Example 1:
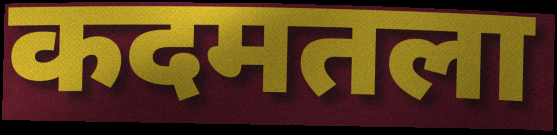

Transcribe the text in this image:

कदमतला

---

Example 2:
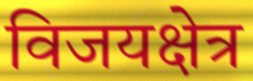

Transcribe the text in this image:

विजयक्षेत्र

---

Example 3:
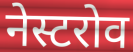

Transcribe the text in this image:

नेस्टरोव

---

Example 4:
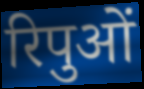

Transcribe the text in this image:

रिपुओं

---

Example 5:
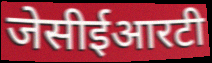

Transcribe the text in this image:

जेसीईआरटी